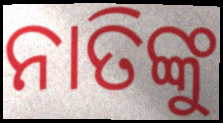
ନାତିଙ୍କୁ